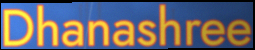
Dhanashree